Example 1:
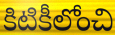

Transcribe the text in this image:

కిటికీలోంచి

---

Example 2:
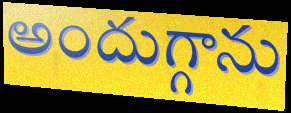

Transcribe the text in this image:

అందుగ్గాను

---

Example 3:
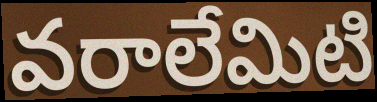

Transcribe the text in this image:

వరాలేమిటి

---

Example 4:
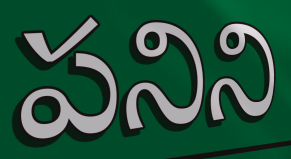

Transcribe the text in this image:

పనిని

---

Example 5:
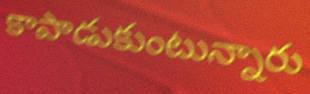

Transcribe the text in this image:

కాపాడుకుంటున్నారు